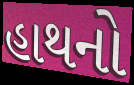
હાથનો